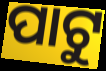
ପାଟୁ